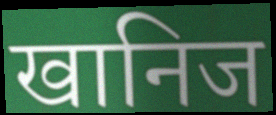
खानिज